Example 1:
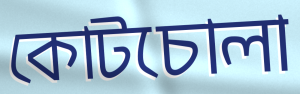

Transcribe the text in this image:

কোটচোলা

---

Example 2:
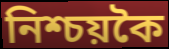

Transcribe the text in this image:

নিশ্চয়কৈ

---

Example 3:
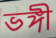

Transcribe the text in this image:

ভঙ্গী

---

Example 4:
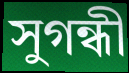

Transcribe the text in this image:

সুগন্ধী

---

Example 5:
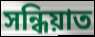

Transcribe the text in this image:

সন্ধিয়াত